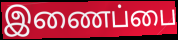
இணைப்பை